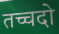
तच्चदो